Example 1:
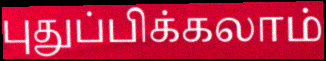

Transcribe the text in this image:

புதுப்பிக்கலாம்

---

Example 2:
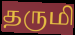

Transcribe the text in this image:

தருமி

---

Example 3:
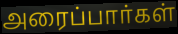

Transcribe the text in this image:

அரைப்பார்கள்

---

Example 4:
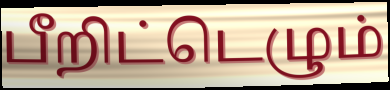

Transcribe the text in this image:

பீறிட்டெழும்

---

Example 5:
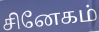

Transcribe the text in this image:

சினேகம்